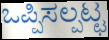
ಒಪ್ಪಿಸಲ್ಪಟ್ಟ